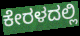
ಕೇರಳದಲ್ಲಿ